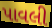
પાવલી